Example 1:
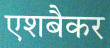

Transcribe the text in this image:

एशबैकर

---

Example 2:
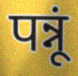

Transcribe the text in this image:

पन्नूं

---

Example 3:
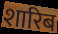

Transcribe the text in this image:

शारिब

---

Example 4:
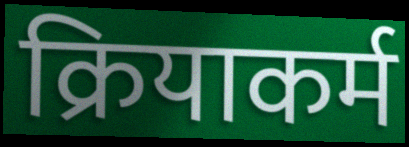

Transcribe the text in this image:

क्रियाकर्म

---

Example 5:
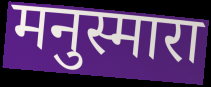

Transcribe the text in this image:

मनुस्मारा